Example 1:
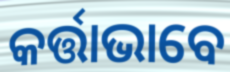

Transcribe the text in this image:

କର୍ତ୍ତାଭାବେ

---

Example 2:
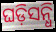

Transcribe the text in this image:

ଘଡ଼ିସନ୍ଧି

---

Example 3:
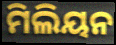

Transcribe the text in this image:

ମିଲିୟନ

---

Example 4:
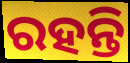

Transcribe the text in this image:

ରହନ୍ତି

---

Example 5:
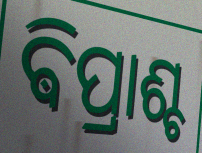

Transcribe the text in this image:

ଵିପ୍ରାଶ୍ଚ